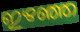
ഇഴഞ്ഞ